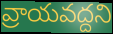
వ్రాయవద్దని